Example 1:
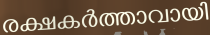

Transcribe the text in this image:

രക്ഷകർത്താവായി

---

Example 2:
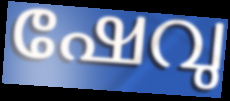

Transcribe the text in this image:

ഷേവു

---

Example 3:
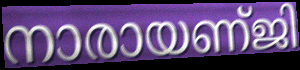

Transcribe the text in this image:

നാരായണ്ജി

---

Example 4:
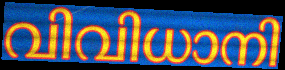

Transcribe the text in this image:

വിവിധാനി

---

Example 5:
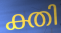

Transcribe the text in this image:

ക്തി